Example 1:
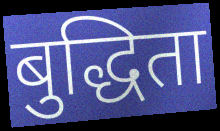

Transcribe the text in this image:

बुद्धिता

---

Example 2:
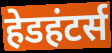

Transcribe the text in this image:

हेडहंटर्स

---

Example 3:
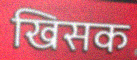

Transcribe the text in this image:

खिसक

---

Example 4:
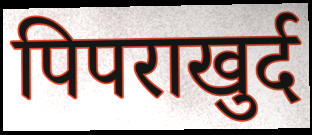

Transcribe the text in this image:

पिपराखुर्द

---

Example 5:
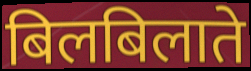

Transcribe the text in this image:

बिलबिलाते